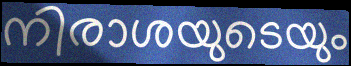
നിരാശയുടെയും